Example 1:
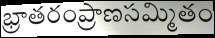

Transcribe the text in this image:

భ్రాతరంప్రాణసమ్మితం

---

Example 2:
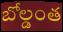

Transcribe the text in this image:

బోల్డంత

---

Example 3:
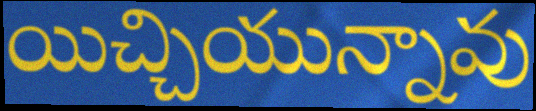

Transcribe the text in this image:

యిచ్చియున్నావు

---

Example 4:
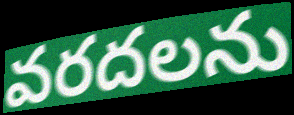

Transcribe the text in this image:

వరదలను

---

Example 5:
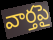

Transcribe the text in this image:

వార్తపై